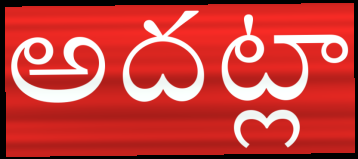
అదట్లా